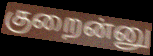
குறைன்னு